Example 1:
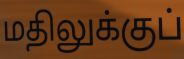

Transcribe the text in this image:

மதிலுக்குப்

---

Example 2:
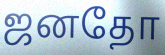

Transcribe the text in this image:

ஜனதோ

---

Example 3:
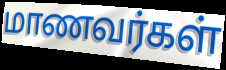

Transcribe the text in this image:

மாணவர்கள்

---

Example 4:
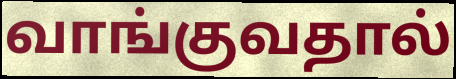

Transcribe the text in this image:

வாங்குவதால்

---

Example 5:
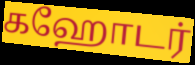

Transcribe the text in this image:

கஹோடர்